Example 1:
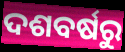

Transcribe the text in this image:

ଦଶବର୍ଷରୁ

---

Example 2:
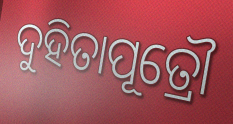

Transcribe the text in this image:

ଦୁହିତାପୂତ୍ରୌ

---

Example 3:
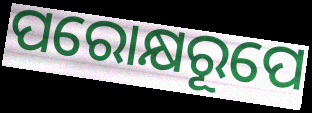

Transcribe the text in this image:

ପରୋକ୍ଷରୂପେ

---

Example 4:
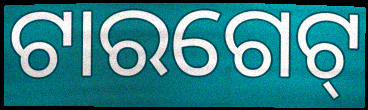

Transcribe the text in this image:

ଟାରଗେଟ୍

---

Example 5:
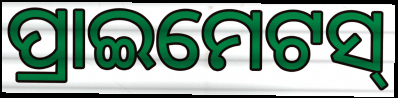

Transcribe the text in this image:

ପ୍ରାଇମେଟସ୍